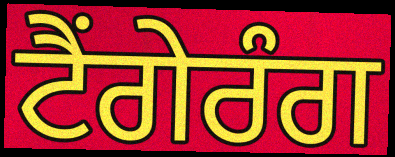
ਟੈਂਗੇਰੰਗ